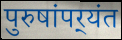
पुरुषांपर्यंत